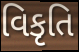
વિકૃતિ